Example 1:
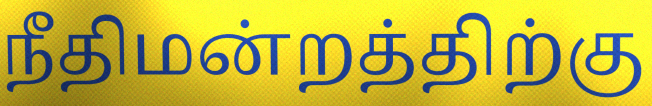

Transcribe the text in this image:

நீதிமன்றத்திற்கு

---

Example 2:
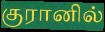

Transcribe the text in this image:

குரானில்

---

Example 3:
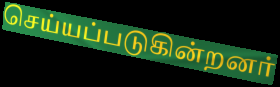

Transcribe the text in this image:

செய்யப்படுகின்றனர்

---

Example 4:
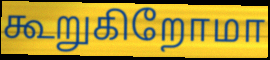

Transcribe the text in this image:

கூறுகிறோமா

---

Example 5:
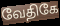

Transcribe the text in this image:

வேதிகே